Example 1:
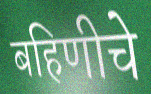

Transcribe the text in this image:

बहिणीचे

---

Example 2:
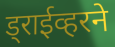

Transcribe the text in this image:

ड्राईव्हरने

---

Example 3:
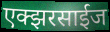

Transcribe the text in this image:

एक्झरसाईज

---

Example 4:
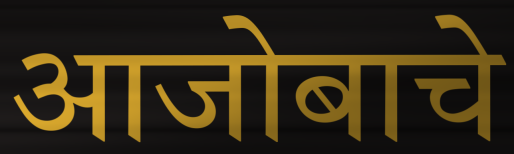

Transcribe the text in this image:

आजोबाचे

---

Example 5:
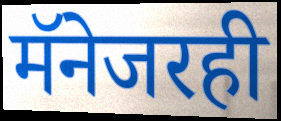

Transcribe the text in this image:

मॅनेजरही